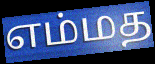
எம்மத